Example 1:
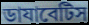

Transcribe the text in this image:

ডাযাবেটিস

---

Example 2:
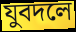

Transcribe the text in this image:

যুবদলে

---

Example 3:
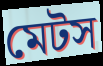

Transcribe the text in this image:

মেটস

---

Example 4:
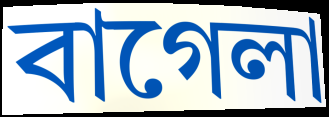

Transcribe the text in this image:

বাগেলা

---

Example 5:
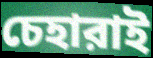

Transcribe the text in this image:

চেহারাই